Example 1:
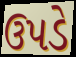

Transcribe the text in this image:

ઉપડે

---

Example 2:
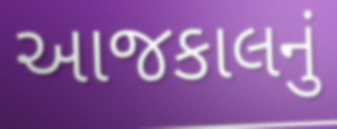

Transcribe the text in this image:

આજકાલનું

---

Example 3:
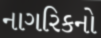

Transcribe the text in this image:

નાગરિકનો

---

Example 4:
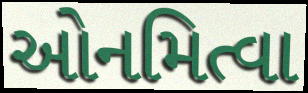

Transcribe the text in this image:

ઓનમિત્વા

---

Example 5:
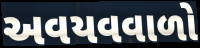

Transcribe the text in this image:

અવયવવાળો